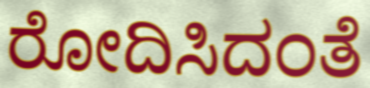
ರೋದಿಸಿದಂತೆ